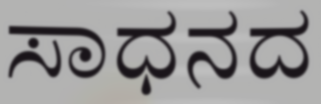
ಸಾಧನದ